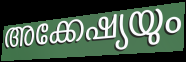
അക്കേഷ്യയും